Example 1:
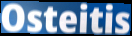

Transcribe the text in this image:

Osteitis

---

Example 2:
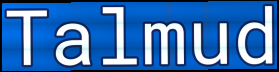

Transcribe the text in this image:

Talmud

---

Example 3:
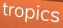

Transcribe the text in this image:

tropics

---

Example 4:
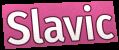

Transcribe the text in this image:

Slavic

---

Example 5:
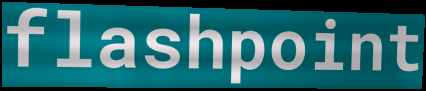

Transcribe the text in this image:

flashpoint